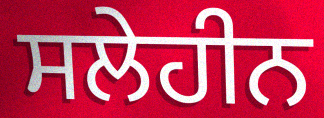
ਸਲੇਹੀਨ